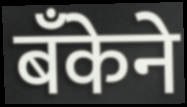
बँकेने